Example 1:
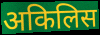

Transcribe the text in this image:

अकिलिस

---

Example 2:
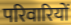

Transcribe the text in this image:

परिवारियों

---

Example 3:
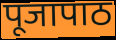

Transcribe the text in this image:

पूजापाठ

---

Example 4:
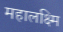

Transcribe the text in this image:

महालक्ष्मि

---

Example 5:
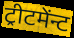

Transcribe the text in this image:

ट्रीटमेंन्ट